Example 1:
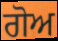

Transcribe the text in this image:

ਗੋਅ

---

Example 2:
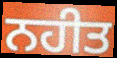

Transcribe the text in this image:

ਨਹੀਤ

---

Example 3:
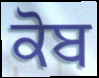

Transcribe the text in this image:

ਕੋਬ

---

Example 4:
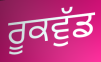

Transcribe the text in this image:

ਰੂਕਵੁੱਡ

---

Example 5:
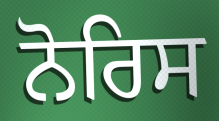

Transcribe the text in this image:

ਨੋਰਿਸ